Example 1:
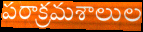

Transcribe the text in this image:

పరాక్రమశాలుల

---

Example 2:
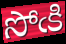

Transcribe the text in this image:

సోఁకి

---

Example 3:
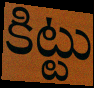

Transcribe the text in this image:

కిట్టు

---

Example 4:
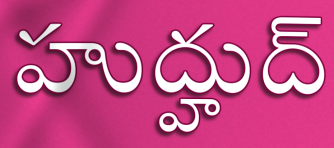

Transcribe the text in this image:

హుద్హుద్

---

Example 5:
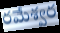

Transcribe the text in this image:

రమేశ్వర